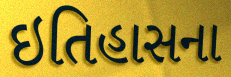
ઇતિહાસના